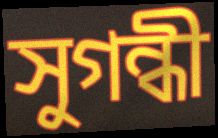
সুগন্ধী